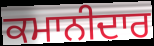
ਕਮਾਨੀਦਾਰ